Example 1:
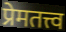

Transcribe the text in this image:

प्रेमतत्त्व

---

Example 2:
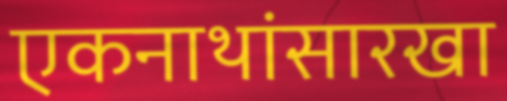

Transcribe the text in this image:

एकनाथांसारखा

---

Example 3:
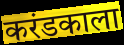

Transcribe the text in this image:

करंडकाला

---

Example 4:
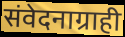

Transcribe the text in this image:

संवेदनाग्राही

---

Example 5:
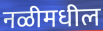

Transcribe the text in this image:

नळीमधील